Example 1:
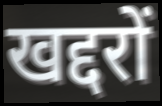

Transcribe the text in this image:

खद्दरों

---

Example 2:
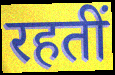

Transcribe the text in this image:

रहतीं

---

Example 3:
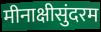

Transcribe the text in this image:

मीनाक्षीसुंदरम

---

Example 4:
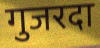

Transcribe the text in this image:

गुजरदा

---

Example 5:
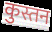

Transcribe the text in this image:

कुस्तन